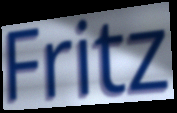
Fritz